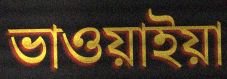
ভাওয়াইয়া